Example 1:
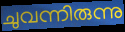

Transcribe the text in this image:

ചുവന്നിരുന്നു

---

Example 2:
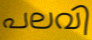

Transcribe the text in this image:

പലവി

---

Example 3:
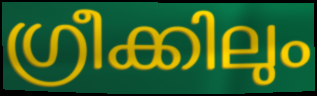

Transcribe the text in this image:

ഗ്രീക്കിലും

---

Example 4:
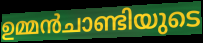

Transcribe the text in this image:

ഉമ്മൻചാണ്ടിയുടെ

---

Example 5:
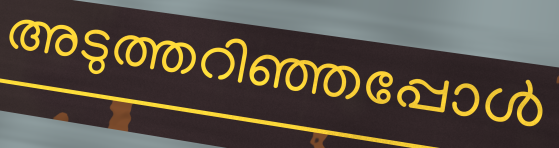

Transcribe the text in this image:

അടുത്തറിഞ്ഞപ്പോൾ